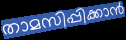
താമസിപ്പിക്കാൻ